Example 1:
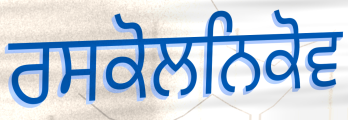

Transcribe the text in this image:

ਰਸਕੋਲਨਿਕੋਵ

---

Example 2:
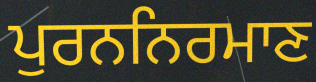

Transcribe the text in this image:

ਪੁਰਨਨਿਰਮਾਣ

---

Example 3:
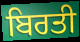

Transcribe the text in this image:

ਬਿਰਤੀ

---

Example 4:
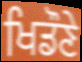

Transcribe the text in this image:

ਖਿਡੌਣੇ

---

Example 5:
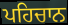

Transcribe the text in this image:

ਪਹਿਚਾਨ